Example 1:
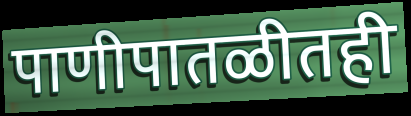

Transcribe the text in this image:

पाणीपातळीतही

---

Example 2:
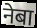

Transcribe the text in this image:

नेबा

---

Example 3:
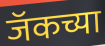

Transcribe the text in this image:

जॅकच्या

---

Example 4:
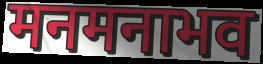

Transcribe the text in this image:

मनमनाभव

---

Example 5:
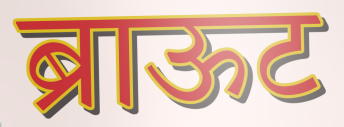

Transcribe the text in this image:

ब्राऊट